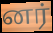
னர்